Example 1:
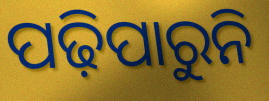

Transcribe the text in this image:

ପଢ଼ିପାରୁନି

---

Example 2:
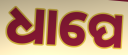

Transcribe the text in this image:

ଧାପେ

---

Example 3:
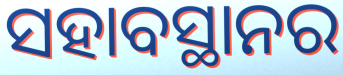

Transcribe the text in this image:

ସହାବସ୍ଥାନର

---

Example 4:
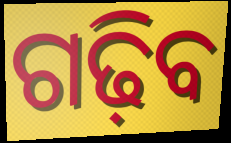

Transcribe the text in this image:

ଗଢ଼ିବ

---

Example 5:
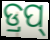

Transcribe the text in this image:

ଡ୍ରପ୍